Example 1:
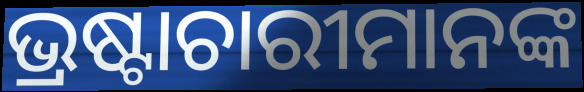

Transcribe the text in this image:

ଭ୍ରଷ୍ଟାଚାରୀମାନଙ୍କ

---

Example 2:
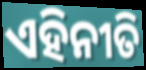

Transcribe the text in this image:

ଏହିନୀତି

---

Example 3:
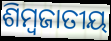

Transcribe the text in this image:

ଶିମ୍ବଜାତୀୟ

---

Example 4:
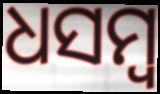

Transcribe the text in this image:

ଧସମ୍ବ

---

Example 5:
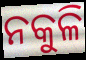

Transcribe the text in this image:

ନକୁଳି